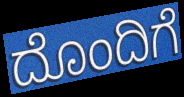
ದೊಂದಿಗೆ